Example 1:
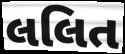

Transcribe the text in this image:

લલિત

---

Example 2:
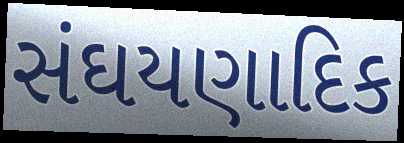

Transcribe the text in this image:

સંઘયણાદિક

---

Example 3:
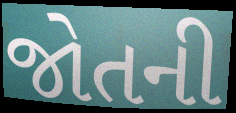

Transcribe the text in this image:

જોતની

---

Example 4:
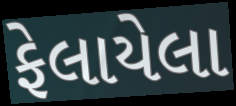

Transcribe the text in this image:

ફેલાયેલા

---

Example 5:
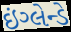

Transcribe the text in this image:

ઇંગ્લેન્ડે